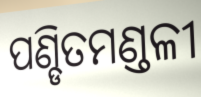
ପଣ୍ଡିତମଣ୍ଡଳୀ